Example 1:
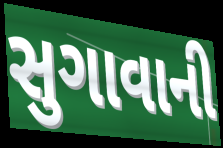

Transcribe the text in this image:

સુગાવાની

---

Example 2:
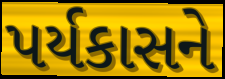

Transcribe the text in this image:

પર્યકાસને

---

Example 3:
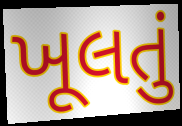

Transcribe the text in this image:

ખૂલતું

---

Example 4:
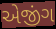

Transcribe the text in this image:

એજીંગ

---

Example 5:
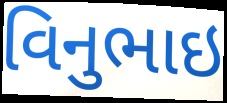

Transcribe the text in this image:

વિનુભાઇ